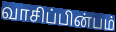
வாசிப்பின்பம்